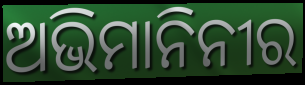
ଅଭିମାନିନୀର